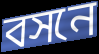
বসনে